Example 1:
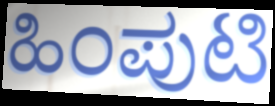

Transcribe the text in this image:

ಹಿಂಪುಟಿ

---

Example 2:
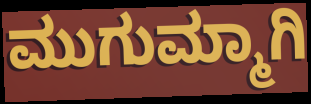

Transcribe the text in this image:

ಮುಗುಮ್ಮಾಗಿ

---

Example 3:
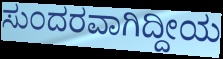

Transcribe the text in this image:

ಸುಂದರವಾಗಿದ್ದೀಯ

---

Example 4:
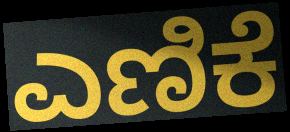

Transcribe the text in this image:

ಎಣಿಕೆ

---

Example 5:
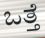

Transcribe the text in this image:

ಒತ್ತೆ